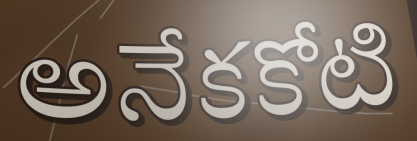
అనేకకోటి